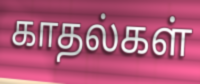
காதல்கள்